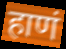
हाणं